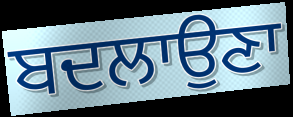
ਬਦਲਾਉਣਾ